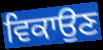
ਵਿਕਾਉਣ